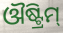
ଔଷ୍ଟ୍ରିମ୍